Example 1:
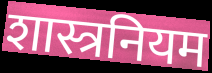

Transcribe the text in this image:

शास्त्रनियम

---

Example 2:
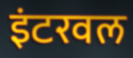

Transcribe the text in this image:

इंटरवल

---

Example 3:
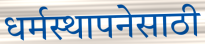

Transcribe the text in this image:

धर्मस्थापनेसाठी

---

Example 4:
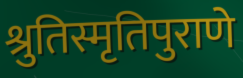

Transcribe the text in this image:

श्रुतिस्मृतिपुराणे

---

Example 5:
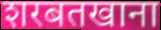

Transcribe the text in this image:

शरबतखाना